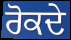
ਰੋਕਦੇ